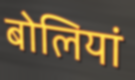
बोलियां